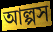
আল্পস